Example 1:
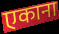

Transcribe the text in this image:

एकाना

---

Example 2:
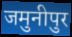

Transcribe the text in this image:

जमुनीपुर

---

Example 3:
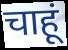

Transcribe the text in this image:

चाहूं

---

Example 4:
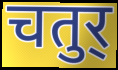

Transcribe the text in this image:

चतुर्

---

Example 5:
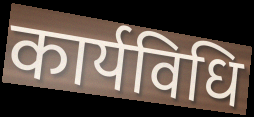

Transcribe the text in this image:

कार्यविधि